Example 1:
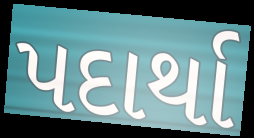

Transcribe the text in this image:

પદાર્થા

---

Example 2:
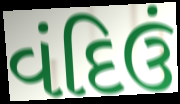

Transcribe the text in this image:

વંદિઉં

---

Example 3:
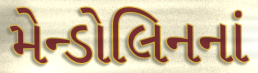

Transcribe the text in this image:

મેન્ડોલિનનાં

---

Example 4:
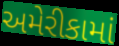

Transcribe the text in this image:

અમેરીકામાં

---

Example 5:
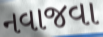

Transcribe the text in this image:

નવાજવા